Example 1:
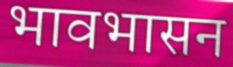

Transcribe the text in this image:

भावभासन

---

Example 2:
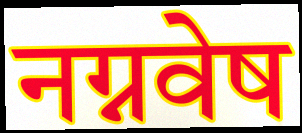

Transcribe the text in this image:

नग्नवेष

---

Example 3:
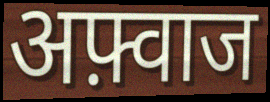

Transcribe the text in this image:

अफ़्वाज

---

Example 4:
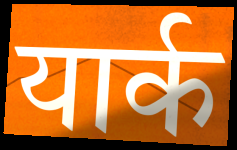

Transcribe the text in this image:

यार्क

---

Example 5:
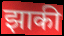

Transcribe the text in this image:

झाकी